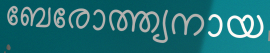
ബേരോത്ത്യനായ